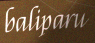
baliparu